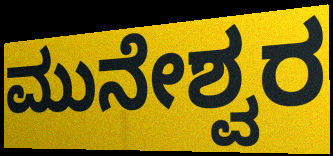
ಮುನೇಶ್ವರ